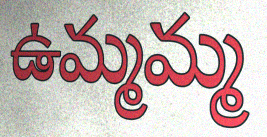
ఉమ్మమ్మ